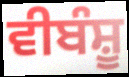
ਵੀਬੰਸ਼ੂ